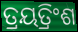
ତ୍ରୟତ୍ରିଂଶ